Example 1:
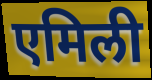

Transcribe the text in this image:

एमिली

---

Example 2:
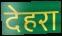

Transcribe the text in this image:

देहरा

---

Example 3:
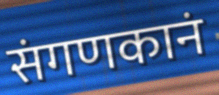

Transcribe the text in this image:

संगणकानं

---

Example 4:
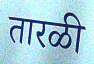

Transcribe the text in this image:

तारळी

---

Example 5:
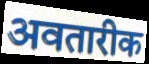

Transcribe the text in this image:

अवतारीक